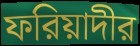
ফরিয়াদীর